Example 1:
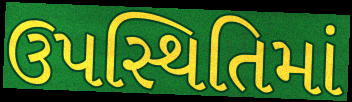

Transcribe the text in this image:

ઉપસ્થિતિમાં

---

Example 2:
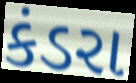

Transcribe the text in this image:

કંડરા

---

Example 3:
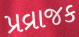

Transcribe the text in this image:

પ્રવ્રાજક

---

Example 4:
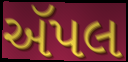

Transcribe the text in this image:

ઍપલ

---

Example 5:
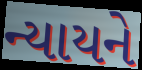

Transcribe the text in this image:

ન્યાયને